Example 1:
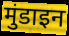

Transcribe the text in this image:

मुंडाइन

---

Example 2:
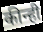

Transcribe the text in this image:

कीन्ही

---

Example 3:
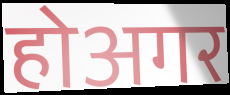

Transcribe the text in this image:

होअगर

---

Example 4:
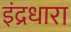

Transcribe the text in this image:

इंद्रधारा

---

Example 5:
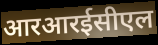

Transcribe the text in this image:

आरआरईसीएल